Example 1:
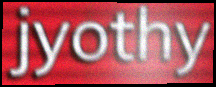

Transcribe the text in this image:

jyothy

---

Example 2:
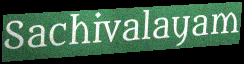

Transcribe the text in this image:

Sachivalayam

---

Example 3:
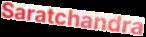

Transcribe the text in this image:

Saratchandra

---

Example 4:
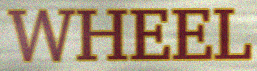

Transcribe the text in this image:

WHEEL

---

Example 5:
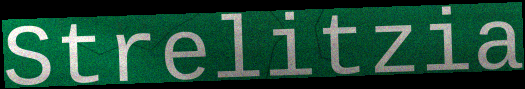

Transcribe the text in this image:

Strelitzia